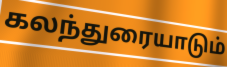
கலந்துரையாடும்